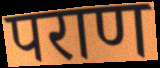
पराण